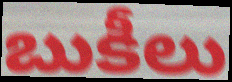
బుకీలు